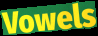
Vowels